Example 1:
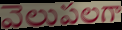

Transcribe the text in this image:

వెలుపలగా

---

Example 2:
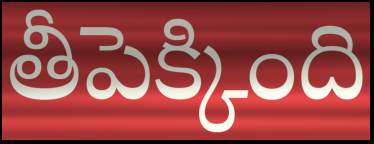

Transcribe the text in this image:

తీపెక్కింది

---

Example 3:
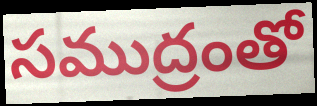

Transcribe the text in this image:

సముద్రంతో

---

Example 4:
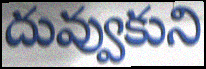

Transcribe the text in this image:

దువ్వుకుని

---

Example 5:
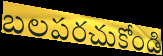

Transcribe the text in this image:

బలపరచుకోండి